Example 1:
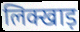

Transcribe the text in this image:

लिक्खाड़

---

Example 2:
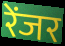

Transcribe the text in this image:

रेंजर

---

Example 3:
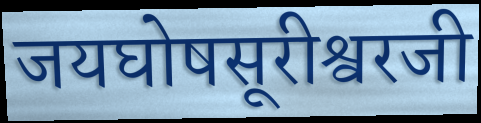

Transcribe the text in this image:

जयघोषसूरीश्वरजी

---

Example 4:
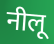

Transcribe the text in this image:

नीलू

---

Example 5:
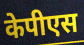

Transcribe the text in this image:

केपीएस